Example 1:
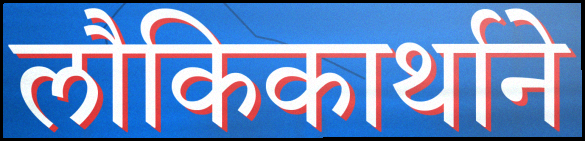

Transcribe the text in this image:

लौकिकार्थाने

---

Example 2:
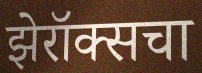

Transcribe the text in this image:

झेरॉक्सचा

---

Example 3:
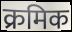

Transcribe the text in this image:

क्रमिक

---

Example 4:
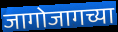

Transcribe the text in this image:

जागोजागच्या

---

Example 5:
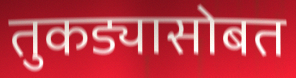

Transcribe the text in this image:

तुकड्यासोबत